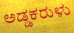
ಅಡ್ಡಕರುಳು